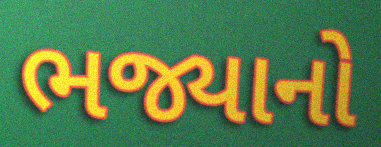
ભજ્યાનો